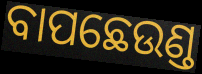
ବାପଛେଉଣ୍ଡ